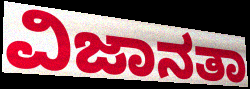
ವಿಜಾನತಾ